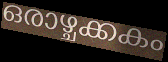
ഒരാഴ്ചക്കകം